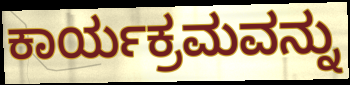
ಕಾರ್ಯಕ್ರಮವನ್ನು